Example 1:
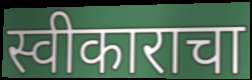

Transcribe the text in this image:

स्वीकाराचा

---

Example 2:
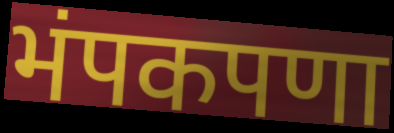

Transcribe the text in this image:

भंपकपणा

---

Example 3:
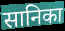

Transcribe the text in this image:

सानिका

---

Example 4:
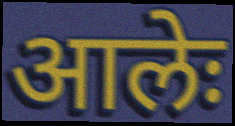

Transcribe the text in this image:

आलेः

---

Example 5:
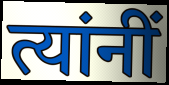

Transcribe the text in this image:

त्यांनीं